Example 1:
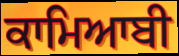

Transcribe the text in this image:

ਕਾਮਿਆਬੀ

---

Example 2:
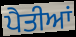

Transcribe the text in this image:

ਪੈਤੀਆਂ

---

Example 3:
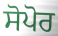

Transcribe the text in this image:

ਸੋਪੋਰ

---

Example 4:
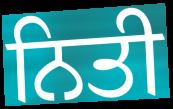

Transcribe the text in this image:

ਨਿਤੀ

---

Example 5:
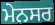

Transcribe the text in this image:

ਮੇਨਸਰ